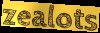
zealots